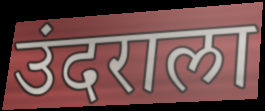
उंदराला